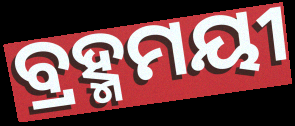
ବ୍ରହ୍ମମୟୀ